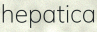
hepatica